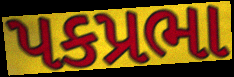
પકપ્રભા